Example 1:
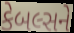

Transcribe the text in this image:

કેબલ્સને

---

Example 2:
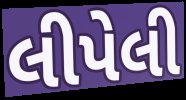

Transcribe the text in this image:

લીપેલી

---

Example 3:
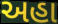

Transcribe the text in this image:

અહા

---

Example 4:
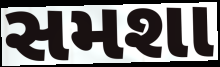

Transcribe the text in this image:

સમશા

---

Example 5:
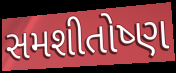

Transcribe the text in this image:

સમશીતોષ્ણ